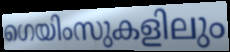
ഗെയിംസുകളിലും